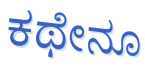
ಕಥೇನೂ